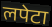
लपेटा